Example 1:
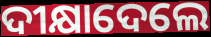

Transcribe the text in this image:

ଦୀକ୍ଷାଦେଲେ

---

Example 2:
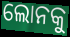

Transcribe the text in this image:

ଲୋନକୁ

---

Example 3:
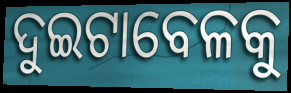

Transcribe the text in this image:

ଦୁଇଟାବେଳକୁ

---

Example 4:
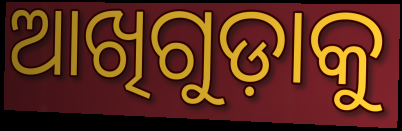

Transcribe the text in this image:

ଆଖିଗୁଡ଼ାକୁ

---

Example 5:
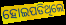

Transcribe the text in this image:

ହୋଇପଡିଥିଲେ